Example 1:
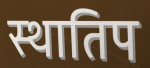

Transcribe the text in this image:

स्थातिप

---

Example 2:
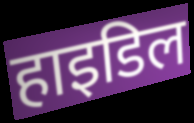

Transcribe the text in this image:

हाइडिल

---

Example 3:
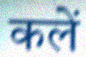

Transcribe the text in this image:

कलें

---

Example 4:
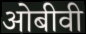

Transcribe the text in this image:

ओबीवी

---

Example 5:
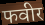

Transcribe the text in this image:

फवीर